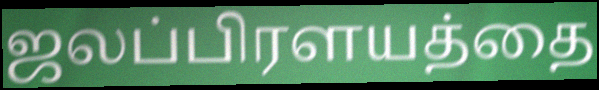
ஜலப்பிரளயத்தை